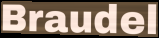
Braudel